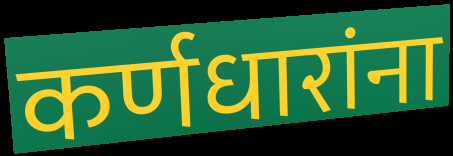
कर्णधारांना